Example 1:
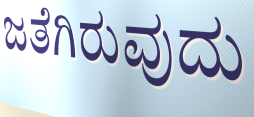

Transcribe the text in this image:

ಜತೆಗಿರುವುದು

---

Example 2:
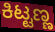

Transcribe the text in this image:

ಕಿಟ್ಟಣ್ಣ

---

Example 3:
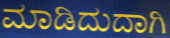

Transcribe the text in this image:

ಮಾಡಿದುದಾಗಿ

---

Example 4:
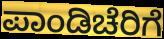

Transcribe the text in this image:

ಪಾಂಡಿಚೆರಿಗೆ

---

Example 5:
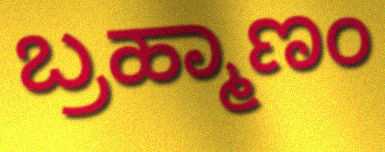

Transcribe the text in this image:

ಬ್ರಹ್ಮಾಣಂ